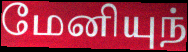
மேனியுந்